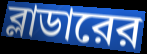
ব্লাডারের